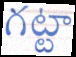
గట్టా